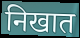
निखात